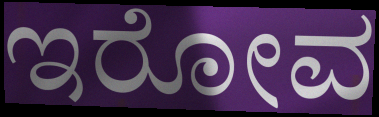
ಇರೋವ